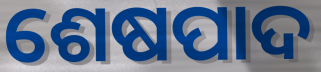
ଶେଷପାଦ